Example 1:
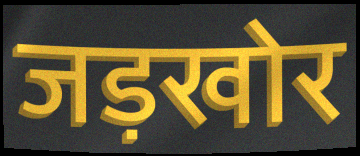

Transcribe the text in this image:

जड़खोर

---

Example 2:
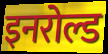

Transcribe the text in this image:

इनरोल्ड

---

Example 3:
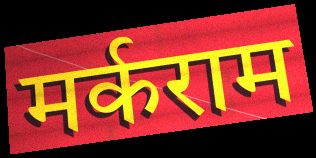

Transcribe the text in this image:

मर्कराम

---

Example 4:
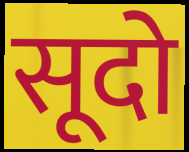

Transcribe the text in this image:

सूदो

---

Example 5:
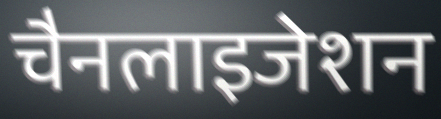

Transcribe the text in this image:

चैनलाइजेशन